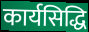
कार्यसिद्धि